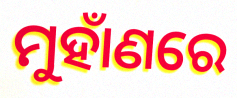
ମୁହାଁଣରେ